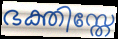
ഭക്തിസ്തേ